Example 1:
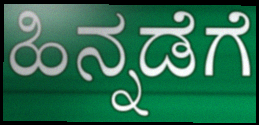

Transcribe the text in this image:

ಹಿನ್ನಡೆಗೆ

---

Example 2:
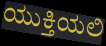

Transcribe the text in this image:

ಯುಕ್ತಿಯಲಿ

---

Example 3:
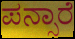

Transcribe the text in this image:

ಪನ್ಸಾರೆ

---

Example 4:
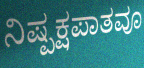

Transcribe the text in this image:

ನಿಷ್ಪಕ್ಷಪಾತವೂ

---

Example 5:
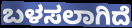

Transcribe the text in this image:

ಬಳಸಲಾಗಿದೆ